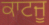
ਕਾਟਜੂ